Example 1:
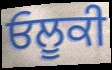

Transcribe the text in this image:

ਓਲੂਕੀ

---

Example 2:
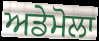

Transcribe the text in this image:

ਅਡੇਮੋਲਾ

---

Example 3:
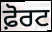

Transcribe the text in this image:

ਫ਼ੋਰਟ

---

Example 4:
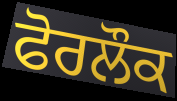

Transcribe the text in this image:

ਫੋਰਲੌਕ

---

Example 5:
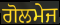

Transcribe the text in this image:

ਗੋਲਮੇਜ